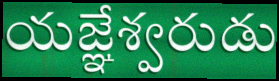
యజ్ఞేశ్వరుడు